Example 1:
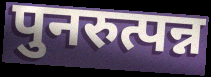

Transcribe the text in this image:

पुनरुत्पन्न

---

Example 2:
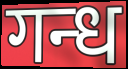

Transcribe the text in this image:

गन्‍ध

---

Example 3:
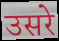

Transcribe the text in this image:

उसरे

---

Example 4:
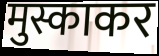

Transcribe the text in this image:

मुस्काकर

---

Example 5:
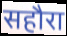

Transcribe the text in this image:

सहौरा